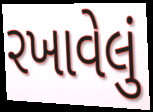
રખાવેલું